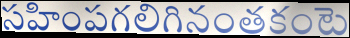
సహింపగలిగినంతకంటె